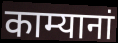
काम्यानां